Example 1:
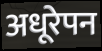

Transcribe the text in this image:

अधूरेपन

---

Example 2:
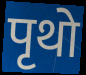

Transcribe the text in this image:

पृथो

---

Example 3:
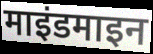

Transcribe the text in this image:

माइंडमाइन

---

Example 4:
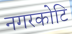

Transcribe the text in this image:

नगरकोटि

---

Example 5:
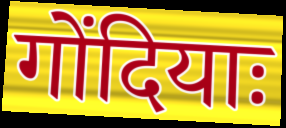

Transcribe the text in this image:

गोंदियाः